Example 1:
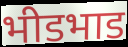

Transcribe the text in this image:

भीडभाड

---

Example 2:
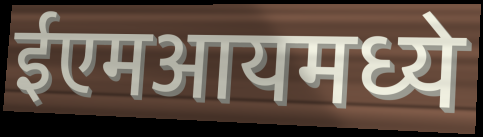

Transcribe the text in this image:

ईएमआयमध्ये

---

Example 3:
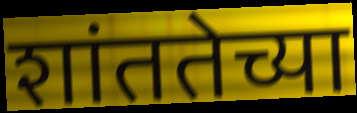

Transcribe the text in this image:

शांततेच्या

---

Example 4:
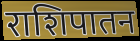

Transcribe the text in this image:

राशिपातन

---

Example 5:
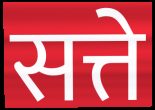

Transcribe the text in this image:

सत्ते